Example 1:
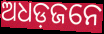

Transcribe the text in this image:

ଅଧଡ଼ଜନେ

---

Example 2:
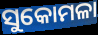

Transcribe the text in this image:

ସୁକୋମଳା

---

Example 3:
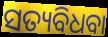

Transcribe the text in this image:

ସତ୍ୟବିଧବା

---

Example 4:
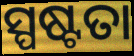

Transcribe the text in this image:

ସ୍ପଷ୍ଟତା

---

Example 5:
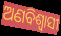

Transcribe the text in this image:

ଅଣବିଶ୍ୱାସୀ